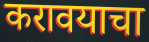
करावयाचा